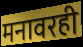
मनावरही